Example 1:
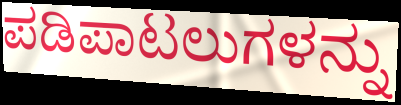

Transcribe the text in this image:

ಪಡಿಪಾಟಲುಗಳನ್ನು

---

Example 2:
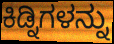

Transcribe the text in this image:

ಕಿಡ್ನಿಗಳನ್ನು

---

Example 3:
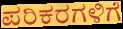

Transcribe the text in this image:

ಪರಿಕರಗಳಿಗೆ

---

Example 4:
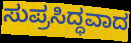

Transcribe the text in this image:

ಸುಪ್ರಸಿದ್ಧವಾದ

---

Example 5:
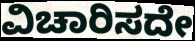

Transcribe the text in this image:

ವಿಚಾರಿಸದೇ